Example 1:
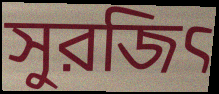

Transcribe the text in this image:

সুরজিৎ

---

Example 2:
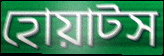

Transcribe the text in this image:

হোয়াট্স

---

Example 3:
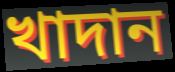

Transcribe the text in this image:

খাদান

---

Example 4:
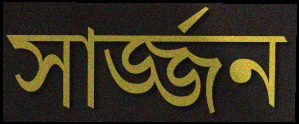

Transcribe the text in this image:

সার্জ্জন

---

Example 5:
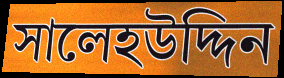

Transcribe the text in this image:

সালেহউদ্দিন